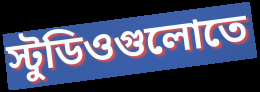
স্টুডিওগুলোতে